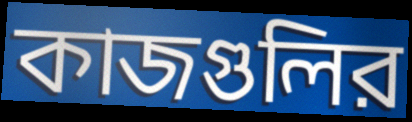
কাজগুলির